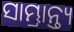
ସାମ୍ଭ୍ରାନ୍ତ୍ୟ